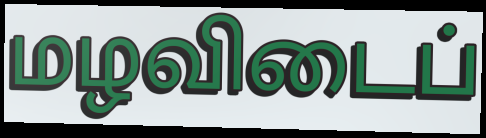
மழவிடைப்